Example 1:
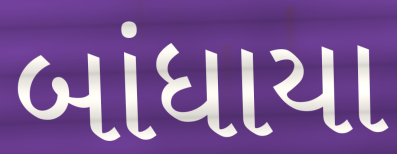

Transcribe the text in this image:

બાંધાયા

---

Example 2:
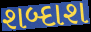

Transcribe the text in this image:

શબ્દાશ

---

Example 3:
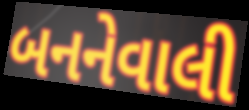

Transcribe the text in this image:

બનનેવાલી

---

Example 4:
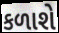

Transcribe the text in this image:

કળાશે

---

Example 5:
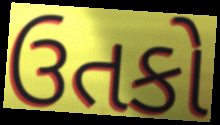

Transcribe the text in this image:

ઉતકો